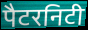
पैटरनिटी